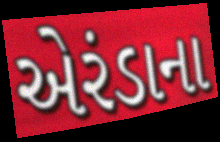
એરંડાના